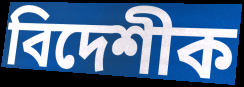
বিদেশীক